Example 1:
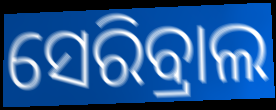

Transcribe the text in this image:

ସେରିବ୍ରାଲ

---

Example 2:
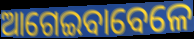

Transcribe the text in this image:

ଆଗେଇବାବେଳେ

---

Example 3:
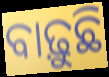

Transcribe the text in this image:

ବାଢ଼ୁଛି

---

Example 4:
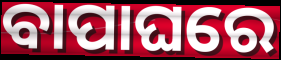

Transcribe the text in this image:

ବାପାଘରେ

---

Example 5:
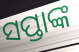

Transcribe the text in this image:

ସପ୍ତାଙ୍କ